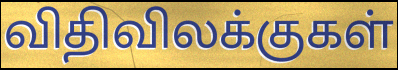
விதிவிலக்குகள்